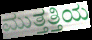
ಮುತ್ತತ್ತಿಯ